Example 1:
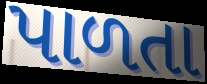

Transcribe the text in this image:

પાળતા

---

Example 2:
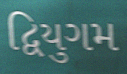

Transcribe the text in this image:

દ્વિયુગમ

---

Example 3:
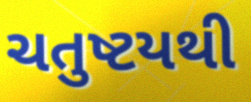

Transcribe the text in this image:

ચતુષ્ટયથી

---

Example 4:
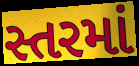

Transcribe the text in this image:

સ્તરમાં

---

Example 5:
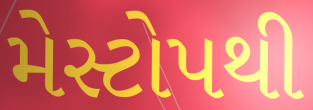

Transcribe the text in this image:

મેસ્ટોપથી